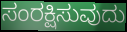
ಸಂರಕ್ಷಿಸುವುದು